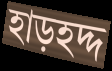
হাড়হদ্দ